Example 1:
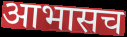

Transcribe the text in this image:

आभासच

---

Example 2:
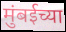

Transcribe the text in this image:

मुंबईच्या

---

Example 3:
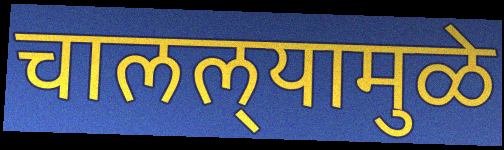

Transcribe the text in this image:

चालल्यामुळे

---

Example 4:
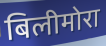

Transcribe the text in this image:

बिलीमोरा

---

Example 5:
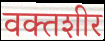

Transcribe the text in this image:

वक्तशीर